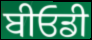
ਬੀਓਡੀ